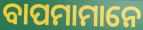
ବାପମାମାନେ